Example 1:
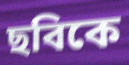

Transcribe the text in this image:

ছবিকে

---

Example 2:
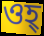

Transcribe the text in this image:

ওহ্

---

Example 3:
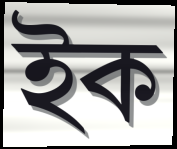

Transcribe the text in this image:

ইক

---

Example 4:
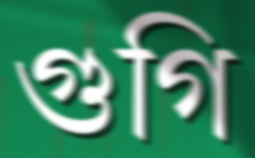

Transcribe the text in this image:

গুগি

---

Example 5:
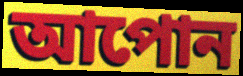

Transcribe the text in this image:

আপোন